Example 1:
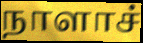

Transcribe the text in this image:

நாளாச்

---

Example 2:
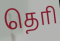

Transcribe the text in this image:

தெரி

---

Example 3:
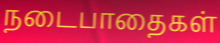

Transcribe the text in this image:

நடைபாதைகள்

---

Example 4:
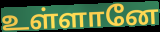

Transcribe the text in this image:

உள்ளானே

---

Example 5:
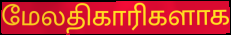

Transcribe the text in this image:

மேலதிகாரிகளாக